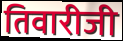
तिवारीजी